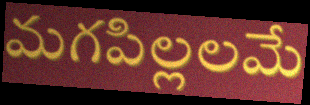
మగపిల్లలమే